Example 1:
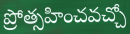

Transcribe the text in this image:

ప్రోత్సహించవచ్చో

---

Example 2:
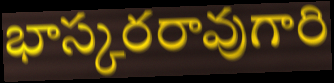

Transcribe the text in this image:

భాస్కరరావుగారి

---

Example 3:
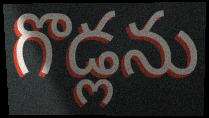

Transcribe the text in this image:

గొడ్లను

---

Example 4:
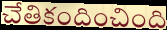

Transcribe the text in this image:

చేతికందించింది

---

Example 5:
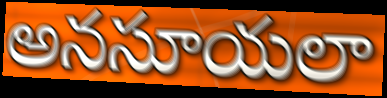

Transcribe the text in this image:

అనసూయలా